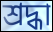
শ্রদ্ধা